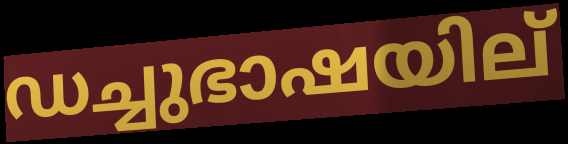
ഡച്ചുഭാഷയില്